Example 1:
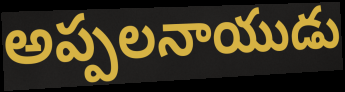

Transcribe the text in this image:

అప్పలనాయుడు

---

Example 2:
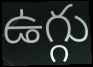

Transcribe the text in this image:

ఉగ్గు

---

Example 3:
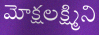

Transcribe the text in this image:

మోక్షలక్ష్మిని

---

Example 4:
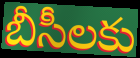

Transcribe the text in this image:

బీసీలకు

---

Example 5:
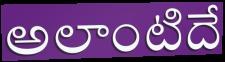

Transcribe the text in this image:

అలాంటిదే